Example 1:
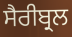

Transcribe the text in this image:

ਸੈਰੀਬ੍ਰਲ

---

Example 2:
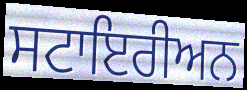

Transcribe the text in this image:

ਸਟਾਇਰੀਅਨ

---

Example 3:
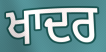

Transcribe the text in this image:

ਖਾਦਰ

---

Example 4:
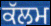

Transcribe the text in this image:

ਕੱਲਮ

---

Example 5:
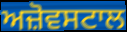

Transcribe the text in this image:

ਅਜ਼ੋਵਸਟਾਲ